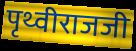
पृथ्वीराजजी